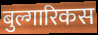
बुल्गारिकस